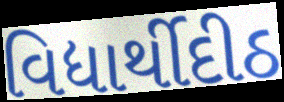
વિદ્યાર્થીદીઠ